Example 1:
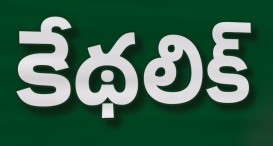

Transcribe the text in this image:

కేథలిక్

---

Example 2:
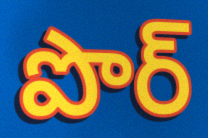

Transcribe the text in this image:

పొర్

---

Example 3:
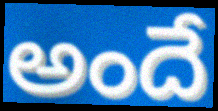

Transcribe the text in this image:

అందే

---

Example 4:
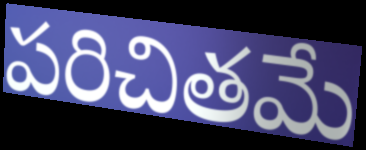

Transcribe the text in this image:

పరిచితమే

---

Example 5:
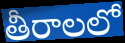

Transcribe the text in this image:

తీరాలలో